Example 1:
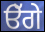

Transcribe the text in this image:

ੳੱਗੇ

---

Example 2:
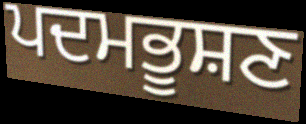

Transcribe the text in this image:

ਪਦਮਭੂਸ਼ਣ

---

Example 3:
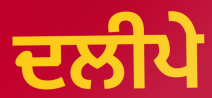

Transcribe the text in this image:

ਦਲੀਪੇ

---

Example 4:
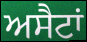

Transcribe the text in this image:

ਅਸੈਟਾਂ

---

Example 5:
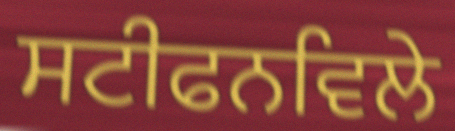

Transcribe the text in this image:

ਸਟੀਫਨਵਿਲੇ